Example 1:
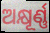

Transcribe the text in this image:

ଅକ୍ଷୂର୍ଣ୍ଣ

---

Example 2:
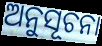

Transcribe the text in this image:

ଅନୁସୂଚନା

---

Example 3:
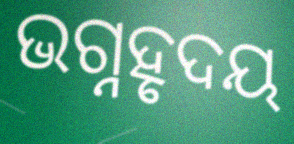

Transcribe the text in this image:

ଭଗ୍ନହୃଦୟ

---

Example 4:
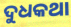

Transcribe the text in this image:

ଦୁଧକଥା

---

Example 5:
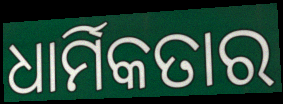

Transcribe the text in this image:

ଧାର୍ମିକତାର